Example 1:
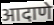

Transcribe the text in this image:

आदाणे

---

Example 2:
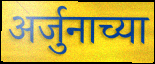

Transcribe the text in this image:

अर्जुनाच्या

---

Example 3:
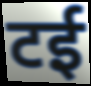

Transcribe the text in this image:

टई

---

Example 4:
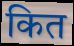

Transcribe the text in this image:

कित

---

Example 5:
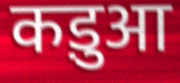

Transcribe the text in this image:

कड़ुआ